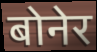
बोनेर